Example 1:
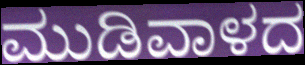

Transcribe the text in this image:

ಮುಡಿವಾಳದ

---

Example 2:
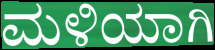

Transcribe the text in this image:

ಮಳಿಯಾಗಿ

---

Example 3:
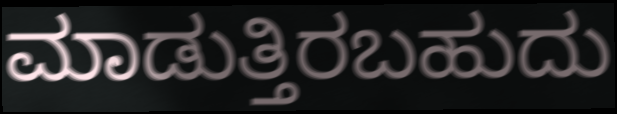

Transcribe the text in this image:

ಮಾಡುತ್ತಿರಬಹುದು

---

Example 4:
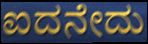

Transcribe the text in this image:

ಐದನೇದು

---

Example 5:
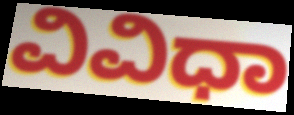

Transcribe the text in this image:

ವಿವಿಧಾ